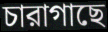
চারাগাছে